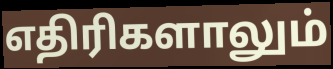
எதிரிகளாலும்